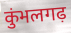
कुंभलगढ़